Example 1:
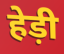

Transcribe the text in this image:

हेड़ी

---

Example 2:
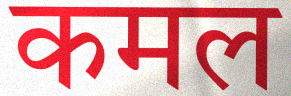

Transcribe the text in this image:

कमल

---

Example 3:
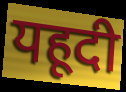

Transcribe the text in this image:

यहूदी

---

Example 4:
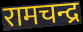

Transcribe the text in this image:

रामचन्द्र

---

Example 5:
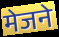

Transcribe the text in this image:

मेजने